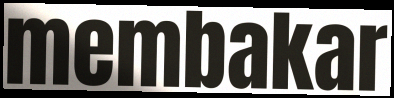
membakar